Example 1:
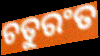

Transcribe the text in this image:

ଚତୁରଂତ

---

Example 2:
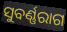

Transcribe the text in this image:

ସୁବର୍ଣ୍ଣରାଗ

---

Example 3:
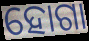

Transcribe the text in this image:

ହୋଗା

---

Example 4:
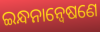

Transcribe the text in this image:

ଇନ୍ଧନାନ୍ଵେଷଣେ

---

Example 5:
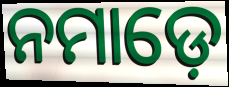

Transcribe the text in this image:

ନମାଡ଼େ